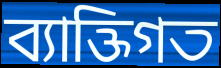
ব্যাক্তিগত